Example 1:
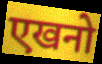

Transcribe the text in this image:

एखनो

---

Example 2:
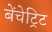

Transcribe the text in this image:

बेंचेट्रिट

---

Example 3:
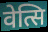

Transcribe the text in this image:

वेत्सि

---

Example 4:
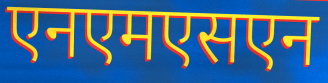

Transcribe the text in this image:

एनएमएसएन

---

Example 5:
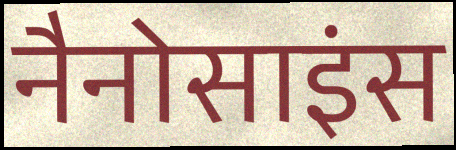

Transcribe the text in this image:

नैनोसाइंस